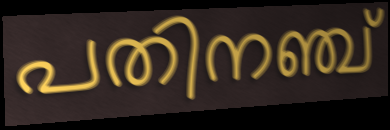
പതിനഞ്ച്